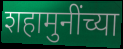
शहामुनींच्या